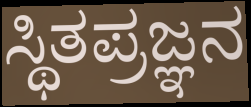
ಸ್ಥಿತಪ್ರಜ್ಞನ